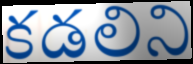
కడలిని